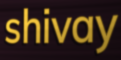
shivay